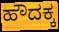
ಹೌದಕ್ಕ